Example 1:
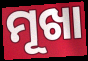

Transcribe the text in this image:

ମୂଖା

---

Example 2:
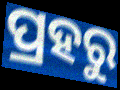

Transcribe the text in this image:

ପ୍ରହରୁ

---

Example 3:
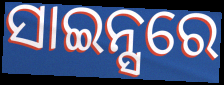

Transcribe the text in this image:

ସାଇନ୍ସରେ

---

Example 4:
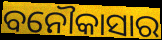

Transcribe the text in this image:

ବନୌକାସାର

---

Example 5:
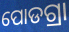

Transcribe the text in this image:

ପୋଡଗ୍ରା